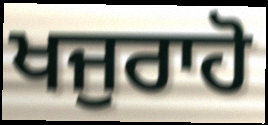
ਖਜੁਰਾਹੋ